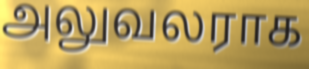
அலுவலராக